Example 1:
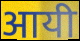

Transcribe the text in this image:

आयी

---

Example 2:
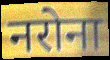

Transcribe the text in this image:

नरोना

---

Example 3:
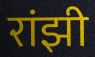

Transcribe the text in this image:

रांझी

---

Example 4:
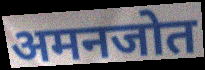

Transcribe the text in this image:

अमनजोत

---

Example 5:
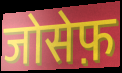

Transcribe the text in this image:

जोसेफ़